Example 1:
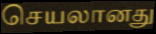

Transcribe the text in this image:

செயலானது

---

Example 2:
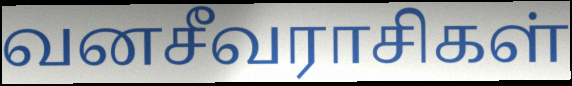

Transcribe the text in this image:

வனசீவராசிகள்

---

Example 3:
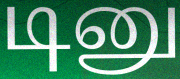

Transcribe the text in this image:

டினு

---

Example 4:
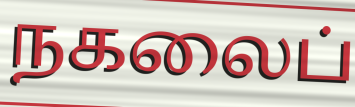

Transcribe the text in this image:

நகலைப்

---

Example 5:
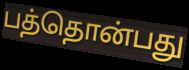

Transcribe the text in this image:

பத்தொன்பது